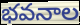
భవనాల